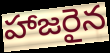
హాజరైన